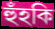
হুঁহকি